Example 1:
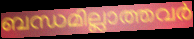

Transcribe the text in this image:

ബന്ധമില്ലാത്തവർ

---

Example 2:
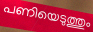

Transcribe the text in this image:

പണിയെടുത്തും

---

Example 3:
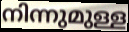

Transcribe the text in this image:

നിന്നുമുള്ള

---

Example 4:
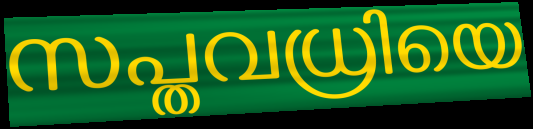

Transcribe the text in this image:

സപ്തവധ്രിയെ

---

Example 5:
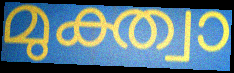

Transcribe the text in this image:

മുക്ത്വാ